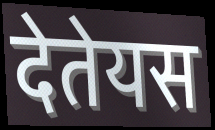
देतेयस